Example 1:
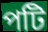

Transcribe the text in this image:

পটি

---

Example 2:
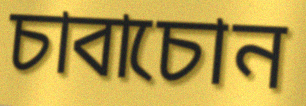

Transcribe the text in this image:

চাবাচোন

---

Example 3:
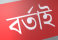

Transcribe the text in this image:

বৰ্তাই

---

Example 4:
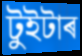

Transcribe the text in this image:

টুইটাৰ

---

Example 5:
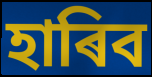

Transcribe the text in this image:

হাৰিব